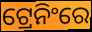
ଟ୍ରେନିଂରେ